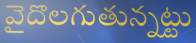
వైదొలగుతున్నట్టు